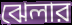
ঝেলার